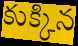
కుక్కిన